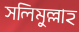
সলিমুল্লাহ